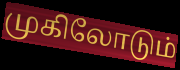
முகிலோடும்